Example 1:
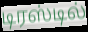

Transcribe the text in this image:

டிரஸ்டில்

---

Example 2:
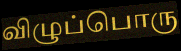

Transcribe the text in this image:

விழுப்பொரு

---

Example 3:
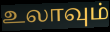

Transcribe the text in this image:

உலாவும்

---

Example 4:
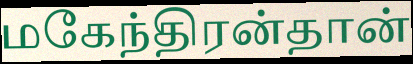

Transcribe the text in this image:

மகேந்திரன்தான்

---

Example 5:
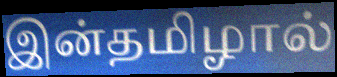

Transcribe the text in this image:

இன்தமிழால்